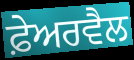
ਫ਼ੇਅਰਵੈਲ